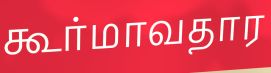
கூர்மாவதார